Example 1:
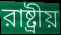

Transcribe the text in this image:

রাষ্ট্রীয়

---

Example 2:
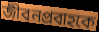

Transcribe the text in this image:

জীবনপ্রবাহকে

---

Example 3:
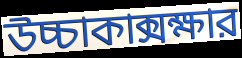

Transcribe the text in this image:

উচ্চাকাক্সক্ষার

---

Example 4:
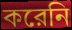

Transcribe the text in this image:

করেনি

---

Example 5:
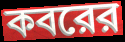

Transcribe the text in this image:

কবরের